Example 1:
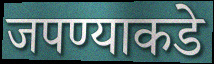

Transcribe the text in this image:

जपण्याकडे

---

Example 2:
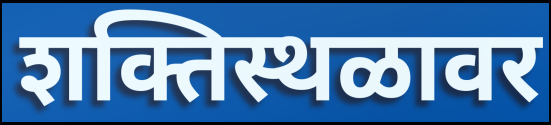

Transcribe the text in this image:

शक्तिस्थळावर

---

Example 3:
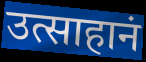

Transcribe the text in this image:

उत्साहानं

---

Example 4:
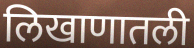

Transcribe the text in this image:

लिखाणातली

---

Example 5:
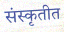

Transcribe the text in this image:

संस्कृतीत